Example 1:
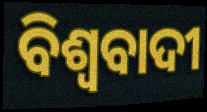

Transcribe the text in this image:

ବିଶ୍ଵବାଦୀ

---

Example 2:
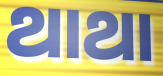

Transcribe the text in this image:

ଥାଥା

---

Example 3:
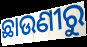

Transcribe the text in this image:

ଛାଉଣୀରୁ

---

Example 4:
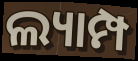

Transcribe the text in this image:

ଲ୍ୟାମ୍ପ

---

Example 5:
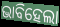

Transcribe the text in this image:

ଭାବିହେଲା